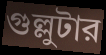
গুল্লুটার